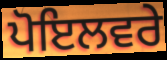
ਪੋਇਲਵਰੇ